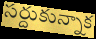
సర్దుకున్నాక